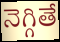
నెగ్గితే